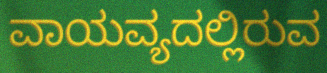
ವಾಯವ್ಯದಲ್ಲಿರುವ